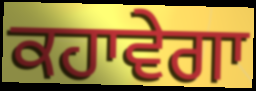
ਕਹਾਵੇਗਾ